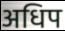
अधिप